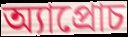
অ্যাপ্রোচ